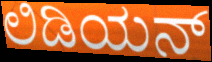
ಲಿಡಿಯನ್